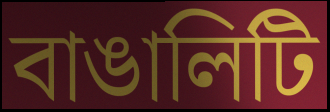
বাঙালিটি